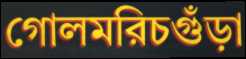
গোলমরিচগুঁড়া